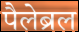
पैलेब्रल